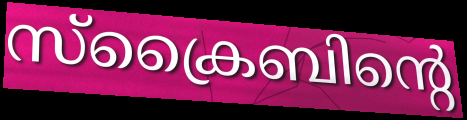
സ്ക്രൈബിന്റെ